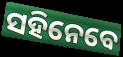
ସହିନେବେ